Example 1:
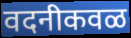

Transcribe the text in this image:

वदनीकवळ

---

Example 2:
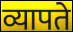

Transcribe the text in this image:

व्यापते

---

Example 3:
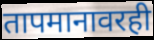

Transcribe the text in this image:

तापमानावरही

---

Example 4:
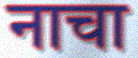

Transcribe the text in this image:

नाचा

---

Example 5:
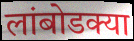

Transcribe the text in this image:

लांबोडक्या